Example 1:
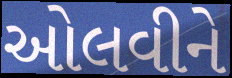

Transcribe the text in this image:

ઓલવીને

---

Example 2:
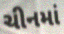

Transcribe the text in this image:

ચીનમાં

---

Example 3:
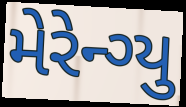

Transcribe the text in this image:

મેરેન્ગ્યુ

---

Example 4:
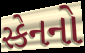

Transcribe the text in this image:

સ્કેનનો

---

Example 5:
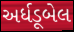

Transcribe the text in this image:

અર્ધડૂબેલ